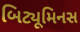
બિટ્યૂમિનસ